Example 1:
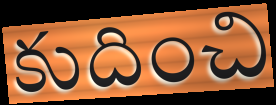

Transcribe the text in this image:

కుదించి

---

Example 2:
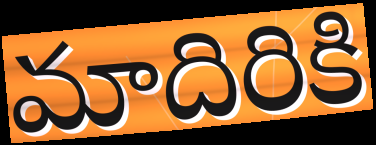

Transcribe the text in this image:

మాదిరికి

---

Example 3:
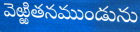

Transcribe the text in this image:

వెఱ్ఱితనముండును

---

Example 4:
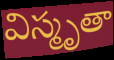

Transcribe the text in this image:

విస్మృతా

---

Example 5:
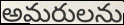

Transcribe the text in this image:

అమరులను